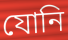
যোনি